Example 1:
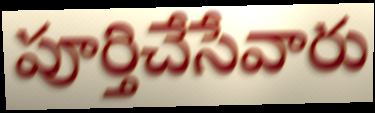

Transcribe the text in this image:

పూర్తిచేసేవారు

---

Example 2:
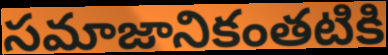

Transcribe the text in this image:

సమాజానికంతటికి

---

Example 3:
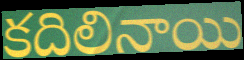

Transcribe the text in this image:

కదిలినాయి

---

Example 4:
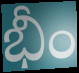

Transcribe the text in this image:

భీం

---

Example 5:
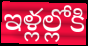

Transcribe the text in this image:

ఇళ్లల్లోకి